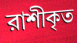
রাশীকৃত